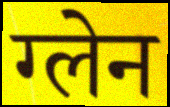
ग्लेन